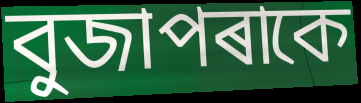
বুজাপৰাকে